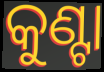
କୁଣ୍ଟା